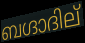
ബഗ്ദാദില്